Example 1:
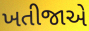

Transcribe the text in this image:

ખતીજાએ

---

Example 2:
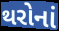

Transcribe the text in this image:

થરોનાં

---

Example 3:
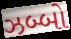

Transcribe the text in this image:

ઝબ્બો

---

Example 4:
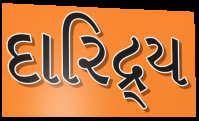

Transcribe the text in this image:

દારિદ્ર્ય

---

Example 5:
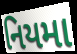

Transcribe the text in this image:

નિયમા